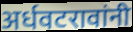
अर्धवटरावांनी